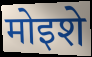
मोइशे